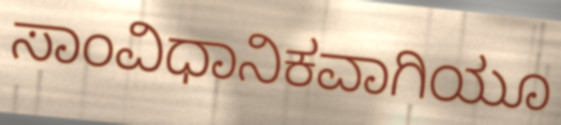
ಸಾಂವಿಧಾನಿಕವಾಗಿಯೂ